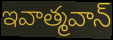
ఇవాత్మవాన్